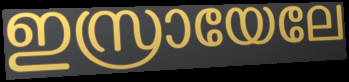
ഇസ്രായേലേ